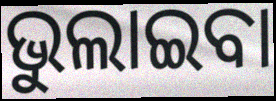
ଭୁଲାଇବା